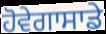
ਹੋਵੇਗਾਸਾਡੇ